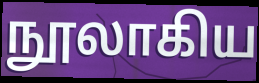
நூலாகிய